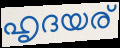
ഹൃദയര്